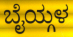
ಬೈಯ್ಗಳ